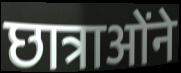
छात्राओंने